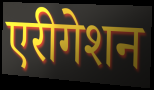
एरीगेशन